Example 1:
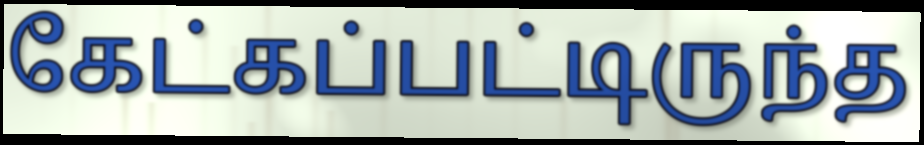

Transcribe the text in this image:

கேட்கப்பட்டிருந்த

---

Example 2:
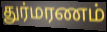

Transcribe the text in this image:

துர்மரணம்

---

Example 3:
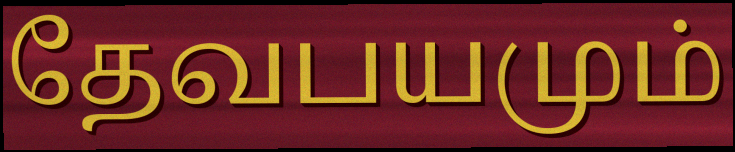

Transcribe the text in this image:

தேவபயமும்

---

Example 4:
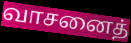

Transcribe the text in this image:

வாசனைத்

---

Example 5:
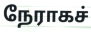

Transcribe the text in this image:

நேராகச்